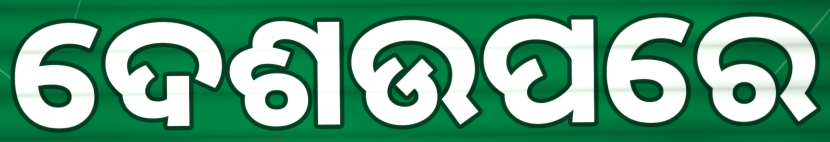
ଦେଶଉପରେ